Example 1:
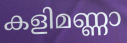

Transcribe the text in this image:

കളിമണ്ണാ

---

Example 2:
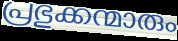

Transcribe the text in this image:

പ്രഭുക്കന്മാരും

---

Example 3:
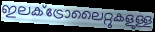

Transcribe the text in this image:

ഇലക്ട്രോലൈറ്റുകളുള്ള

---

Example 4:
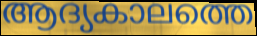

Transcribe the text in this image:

ആദ്യകാലത്തെ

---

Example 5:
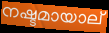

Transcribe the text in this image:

നഷ്ടമായാല്